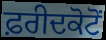
ਫ਼ਰੀਦਕੋਟੋਂ